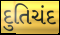
દુતિચંદ